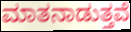
ಮಾತನಾಡುತ್ತವೆ